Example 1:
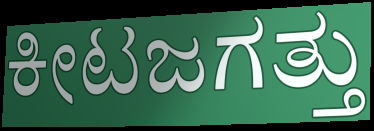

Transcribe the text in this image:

ಕೀಟಜಗತ್ತು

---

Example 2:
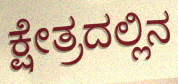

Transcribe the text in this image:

ಕ್ಷೇತ್ರದಲ್ಲಿನ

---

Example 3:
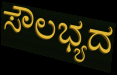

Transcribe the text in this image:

ಸೌಲಭ್ಯದ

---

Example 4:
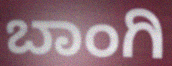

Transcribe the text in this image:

ಬಾಂಗಿ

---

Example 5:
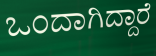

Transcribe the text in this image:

ಒಂದಾಗಿದ್ದಾರೆ